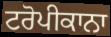
ਟਰੋਪੀਕਾਨਾ